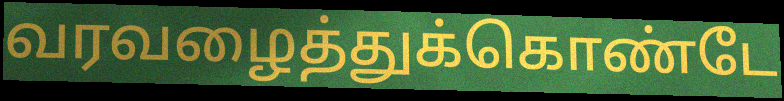
வரவழைத்துக்கொண்டே